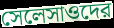
সেলেসাওদের